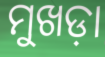
ମୁଖଡ଼ା